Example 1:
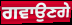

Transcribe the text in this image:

ਗਵਾਉਣਗੇ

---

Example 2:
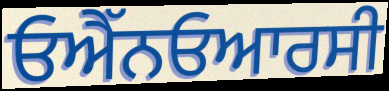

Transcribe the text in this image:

ਓਐੱਨਓਆਰਸੀ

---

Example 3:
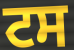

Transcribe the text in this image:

ਟਸ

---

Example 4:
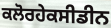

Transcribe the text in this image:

ਕਲੋਰਹੇਕਸੀਡੀਨ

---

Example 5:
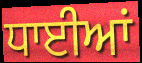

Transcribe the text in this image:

ਧਾਈਆਂ